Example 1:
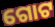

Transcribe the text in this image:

ଗୋଟ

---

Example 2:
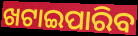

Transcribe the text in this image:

ଖଟାଇପାରିବ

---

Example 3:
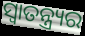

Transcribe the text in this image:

ସ୍ଵାତନ୍ତ୍ର୍ୟର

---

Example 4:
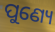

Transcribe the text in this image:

ପୁଣ୍ୟେ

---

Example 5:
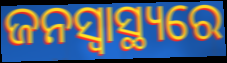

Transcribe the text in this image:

ଜନସ୍ଵାସ୍ଥ୍ୟରେ